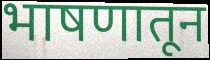
भाषणातून